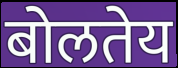
बोलतेय